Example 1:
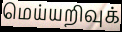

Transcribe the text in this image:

மெய்யறிவுக்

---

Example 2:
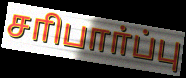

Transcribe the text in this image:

சரிபார்ப்பு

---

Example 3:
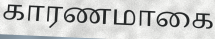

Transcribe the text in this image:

காரணமாகை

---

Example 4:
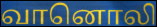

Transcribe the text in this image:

வானொலி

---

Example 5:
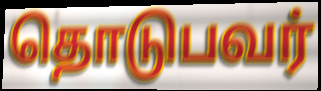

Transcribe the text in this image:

தொடுபவர்